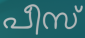
പീസ്